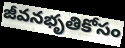
జీవనభృతికోసం